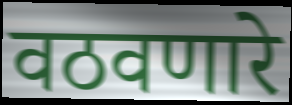
वठवणारे